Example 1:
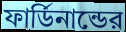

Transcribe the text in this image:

ফার্ডিনান্ডের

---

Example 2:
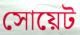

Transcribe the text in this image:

সোয়েট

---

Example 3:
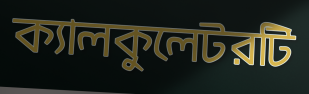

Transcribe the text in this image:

ক্যালকুলেটরটি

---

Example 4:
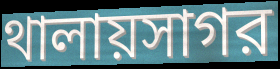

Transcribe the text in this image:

থালায়সাগর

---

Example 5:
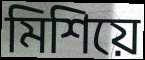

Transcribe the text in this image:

মিশিয়ে